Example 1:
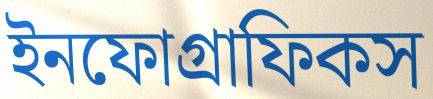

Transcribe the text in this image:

ইনফোগ্রাফিকস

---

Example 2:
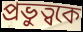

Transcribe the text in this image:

প্রভুত্বকে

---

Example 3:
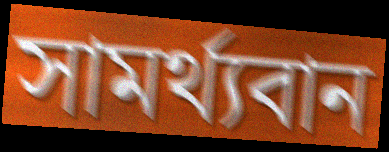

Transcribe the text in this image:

সামর্থ্যবান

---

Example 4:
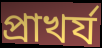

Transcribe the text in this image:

প্রাখর্য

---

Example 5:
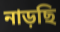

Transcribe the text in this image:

নাড়ছি